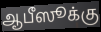
ஆபீஸூக்கு